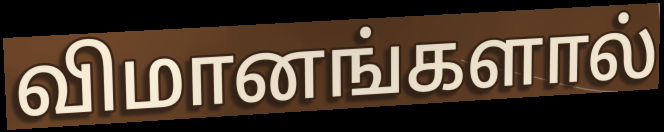
விமானங்களால்